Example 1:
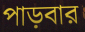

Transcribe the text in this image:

পাড়বার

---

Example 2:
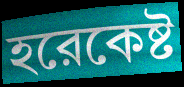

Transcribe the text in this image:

হরেকেষ্ট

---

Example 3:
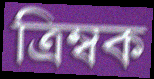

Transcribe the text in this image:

ত্রিম্বক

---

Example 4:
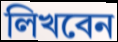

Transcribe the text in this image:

লিখবেন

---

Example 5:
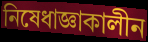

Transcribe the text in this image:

নিষেধাজ্ঞাকালীন